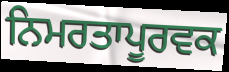
ਨਿਮਰਤਾਪੂਰਵਕ